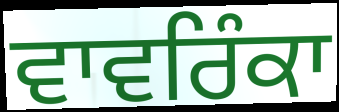
ਵਾਵਰਿੰਕਾ